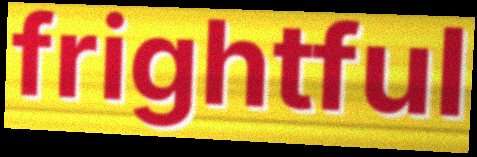
frightful